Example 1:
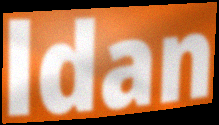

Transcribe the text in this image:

ldan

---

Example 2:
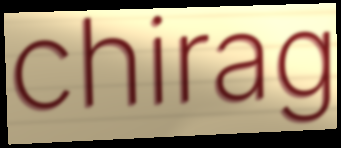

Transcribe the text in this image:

chirag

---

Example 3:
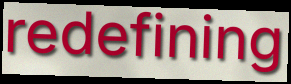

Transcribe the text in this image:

redefining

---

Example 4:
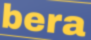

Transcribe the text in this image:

bera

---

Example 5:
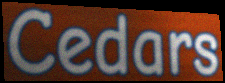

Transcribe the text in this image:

Cedars